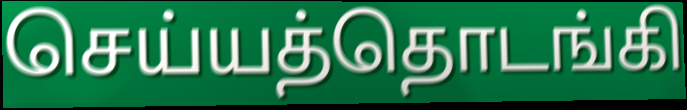
செய்யத்தொடங்கி